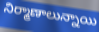
నిర్మాణాలున్నాయి